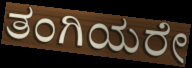
ತಂಗಿಯರೇ